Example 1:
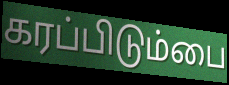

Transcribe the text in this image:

கரப்பிடும்பை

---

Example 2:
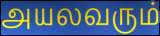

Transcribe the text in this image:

அயலவரும்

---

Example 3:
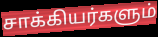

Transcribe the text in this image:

சாக்கியர்களும்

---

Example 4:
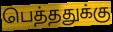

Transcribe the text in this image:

பெத்ததுக்கு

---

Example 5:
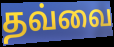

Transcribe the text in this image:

தவ்வை